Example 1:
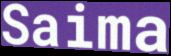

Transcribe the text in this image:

Saima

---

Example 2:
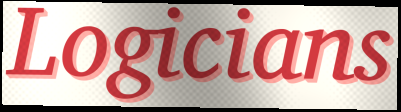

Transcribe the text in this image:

Logicians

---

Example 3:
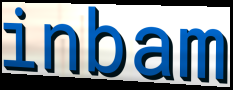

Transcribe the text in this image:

inbam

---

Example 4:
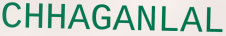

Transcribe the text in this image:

CHHAGANLAL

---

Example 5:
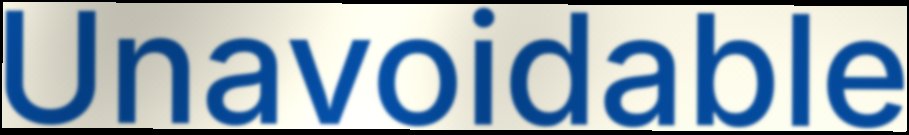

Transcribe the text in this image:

Unavoidable